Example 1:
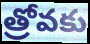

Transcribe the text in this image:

త్రోవకు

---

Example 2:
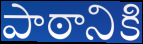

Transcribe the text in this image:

పాఠానికి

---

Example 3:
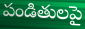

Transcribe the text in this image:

పండితులపై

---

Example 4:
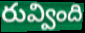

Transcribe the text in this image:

రువ్వింది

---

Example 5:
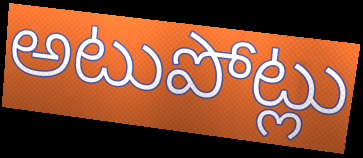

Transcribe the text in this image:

అటుపోట్లు